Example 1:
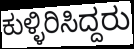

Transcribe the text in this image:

ಕುಳ್ಳಿರಿಸಿದ್ದರು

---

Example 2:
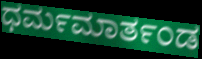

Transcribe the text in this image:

ಧರ್ಮಮಾರ್ತಂಡ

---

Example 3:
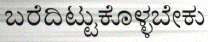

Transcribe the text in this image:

ಬರೆದಿಟ್ಟುಕೊಳ್ಳಬೇಕು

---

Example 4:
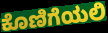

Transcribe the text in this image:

ಕೊಣಿಗೆಯಲಿ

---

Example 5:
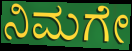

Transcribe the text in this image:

ನಿಮಗೇ